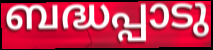
ബദ്ധപ്പാടു